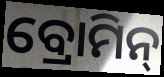
ବ୍ରୋମିନ୍